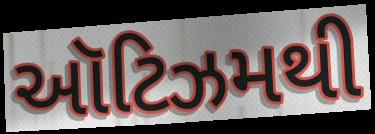
ઑટિઝમથી